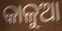
କାଳୁଆ